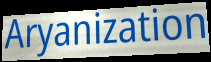
Aryanization